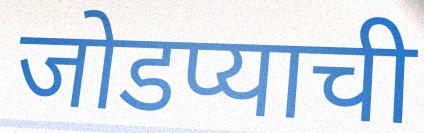
जोडप्याची